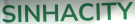
SINHACITY